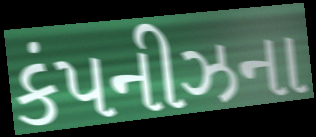
કંપનીઝના